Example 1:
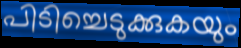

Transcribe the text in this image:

പിടിച്ചെടുക്കുകയും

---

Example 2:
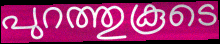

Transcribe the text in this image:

പുറത്തുകൂടെ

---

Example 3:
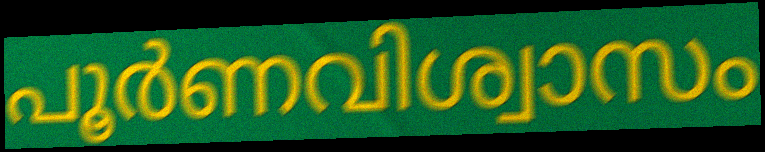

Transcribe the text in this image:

പൂർണവിശ്വാസം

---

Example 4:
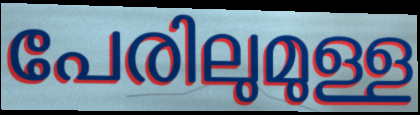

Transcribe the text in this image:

പേരിലുമുള്ള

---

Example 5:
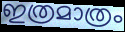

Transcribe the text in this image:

ഇത്രമാത്രം